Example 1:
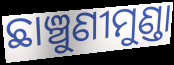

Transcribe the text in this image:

ଛାଞ୍ଚୁଣୀମୁଣ୍ଡା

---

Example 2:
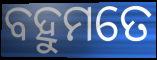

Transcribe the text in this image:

ବହୁମତେ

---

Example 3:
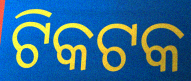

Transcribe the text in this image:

ଟିକଟକ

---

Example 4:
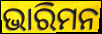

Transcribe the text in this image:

ଭାରିମନ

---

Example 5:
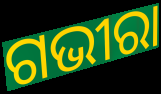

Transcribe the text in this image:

ଗଭୀରା